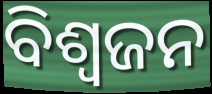
ବିଶ୍ଵଜନ